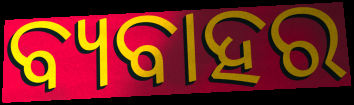
ବ୍ୟବାହର